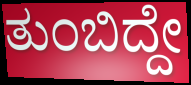
ತುಂಬಿದ್ದೇ